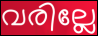
വരില്ലേ